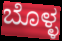
ಬೊಳ್ಳ